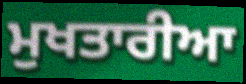
ਮੁਖਤਾਰੀਆ